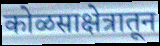
कोळसाक्षेत्रातून